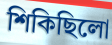
শিকিছিলো